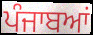
ਪੰਜਾਬਆਂ